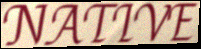
NATIVE